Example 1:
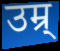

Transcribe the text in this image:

उम्र्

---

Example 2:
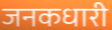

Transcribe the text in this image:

जनकधारी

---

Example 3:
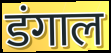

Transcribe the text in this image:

डंगाल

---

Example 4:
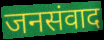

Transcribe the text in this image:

जनसंवाद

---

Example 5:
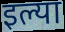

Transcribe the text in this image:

इल्या